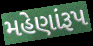
મહેણાંરૂપ